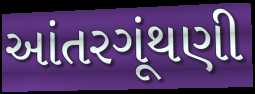
આંતરગૂંથણી